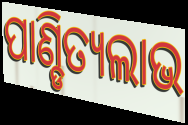
ପାଣ୍ଡିତ୍ୟଲାଭ